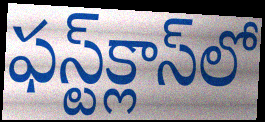
ఫస్ట్‌క్లాస్‌లో